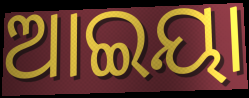
ଆଇୟା